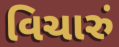
વિચારું